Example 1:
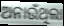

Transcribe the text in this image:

ଅନାଉଁଥିଲା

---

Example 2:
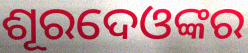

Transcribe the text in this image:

ଶୂରଦେଓଙ୍କର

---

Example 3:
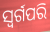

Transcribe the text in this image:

ସ୍ୱର୍ଗପରି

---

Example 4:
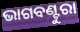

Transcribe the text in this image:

ଭାଗବଣ୍ଟୁରା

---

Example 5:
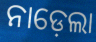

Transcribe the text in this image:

ନାଡ଼େଲା